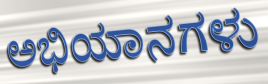
ಅಭಿಯಾನಗಳು